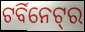
ଟର୍ବିନେଟ୍‌ର